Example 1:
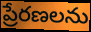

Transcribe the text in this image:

ప్రేరణలను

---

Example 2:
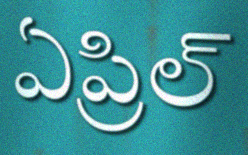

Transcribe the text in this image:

ఏప్రిల్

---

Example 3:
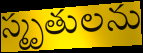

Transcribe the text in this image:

స్మృతులను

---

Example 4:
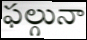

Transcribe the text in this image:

ఫల్గునా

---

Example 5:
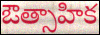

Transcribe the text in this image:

ఔత్సాహిక